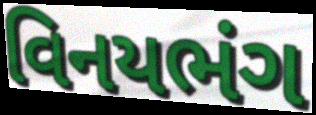
વિનયભંગ